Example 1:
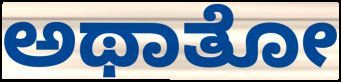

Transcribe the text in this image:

ಅಥಾತೋ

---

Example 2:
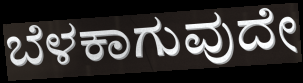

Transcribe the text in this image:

ಬೆಳಕಾಗುವುದೇ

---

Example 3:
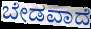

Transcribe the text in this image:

ಬೇಡವಾದೆ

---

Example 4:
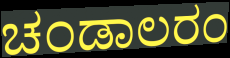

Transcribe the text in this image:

ಚಂಡಾಲರಂ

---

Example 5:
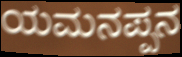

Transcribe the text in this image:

ಯಮನಪ್ಪನ